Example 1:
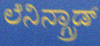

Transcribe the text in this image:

ಲೆನಿನ್ಗ್ರಾಡ್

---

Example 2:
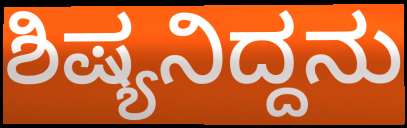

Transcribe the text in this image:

ಶಿಷ್ಯನಿದ್ದನು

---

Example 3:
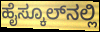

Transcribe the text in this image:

ಹೈಸ್ಕೂಲ್‍ನಲ್ಲಿ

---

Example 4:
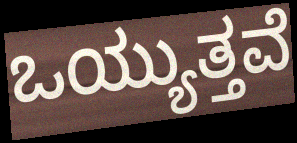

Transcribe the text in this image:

ಒಯ್ಯುತ್ತವೆ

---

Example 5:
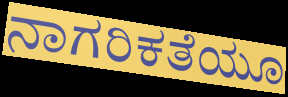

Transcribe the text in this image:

ನಾಗರಿಕತೆಯೂ